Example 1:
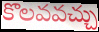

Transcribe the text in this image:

కొలవవచ్చు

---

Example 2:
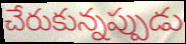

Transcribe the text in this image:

చేరుకున్నప్పుడు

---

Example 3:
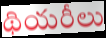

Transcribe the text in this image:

థియరీలు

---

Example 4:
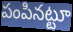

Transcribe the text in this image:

పంపినట్టూ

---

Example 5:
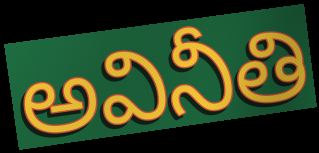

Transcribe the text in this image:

అవినీతి